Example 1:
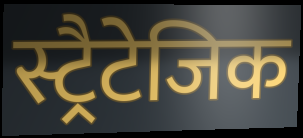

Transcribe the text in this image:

स्ट्रैटेजिक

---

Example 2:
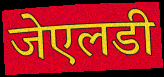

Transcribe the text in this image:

जेएलडी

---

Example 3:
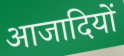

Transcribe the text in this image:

आजादियों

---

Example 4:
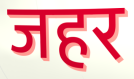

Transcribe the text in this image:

जहर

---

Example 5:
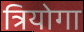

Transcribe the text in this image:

त्रियोगा